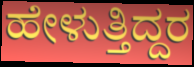
ಹೇಳುತ್ತಿದ್ದರ